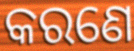
କରଣେ